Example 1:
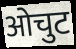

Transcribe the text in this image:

ओचुट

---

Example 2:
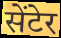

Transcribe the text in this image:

सेंटेर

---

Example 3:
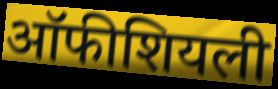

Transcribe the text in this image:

ऑफीशियली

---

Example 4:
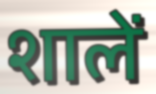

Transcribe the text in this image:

शालें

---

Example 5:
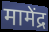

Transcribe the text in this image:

मामेंद्र